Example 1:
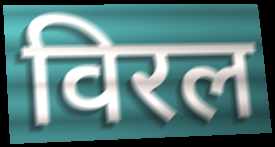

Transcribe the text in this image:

विरल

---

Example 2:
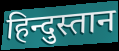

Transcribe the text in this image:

हिन्‍दुस्‍तान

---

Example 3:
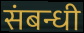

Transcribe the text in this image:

संबन्‍धी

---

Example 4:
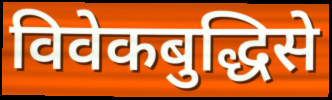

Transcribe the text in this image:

विवेकबुद्धिसे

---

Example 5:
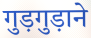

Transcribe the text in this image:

गुड़गुड़ाने